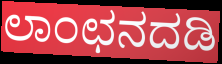
ಲಾಂಛನದಡಿ